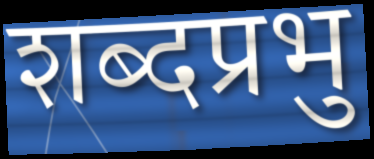
शब्दप्रभु